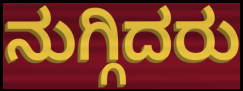
ನುಗ್ಗಿದರು